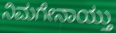
ನಿಮಗೇನಾಯ್ತು